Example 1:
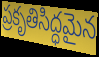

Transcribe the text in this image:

ప్రకృతిసిద్ధమైన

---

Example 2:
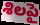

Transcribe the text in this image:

శిలపై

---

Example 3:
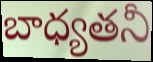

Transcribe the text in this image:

బాధ్యతనీ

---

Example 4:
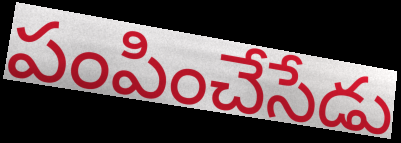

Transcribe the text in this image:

పంపించేసేడు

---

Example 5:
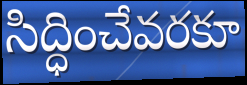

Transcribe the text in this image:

సిద్ధించేవరకూ